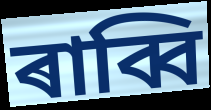
ৰাব্বি